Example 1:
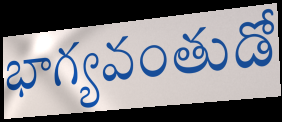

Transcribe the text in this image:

భాగ్యవంతుడో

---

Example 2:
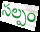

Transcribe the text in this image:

సల్పం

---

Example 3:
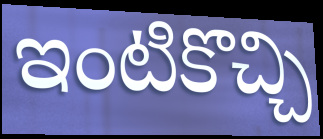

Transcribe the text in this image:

ఇంటికొచ్చి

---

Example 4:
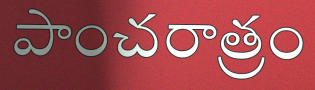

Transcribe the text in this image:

పాంచరాత్రం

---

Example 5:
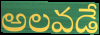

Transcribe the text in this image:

అలవడే